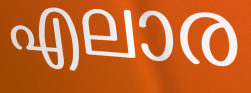
എലാര